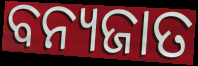
ବନ୍ୟଜାତ